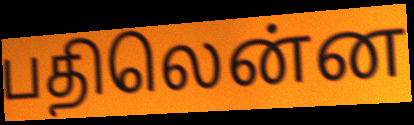
பதிலென்ன